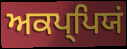
ਅਕਪ੍ਪਿਯਂ